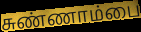
சுண்ணாம்பை